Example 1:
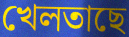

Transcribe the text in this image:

খেলতাছে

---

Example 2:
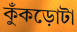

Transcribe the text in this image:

কুঁকড়োটা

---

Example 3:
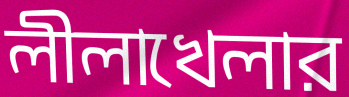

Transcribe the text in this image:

লীলাখেলার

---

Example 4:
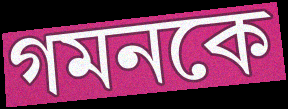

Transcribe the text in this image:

গমনকে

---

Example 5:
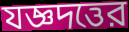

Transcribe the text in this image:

যজ্ঞদত্তের